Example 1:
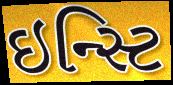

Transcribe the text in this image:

ઇન્સ્ટિ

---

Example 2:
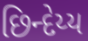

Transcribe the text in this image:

છિન્દેય્ય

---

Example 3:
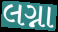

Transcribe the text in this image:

લગ્ના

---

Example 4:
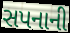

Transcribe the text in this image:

સપનાની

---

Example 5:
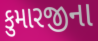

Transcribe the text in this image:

કુમારજીના